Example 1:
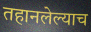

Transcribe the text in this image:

तहानलेल्याच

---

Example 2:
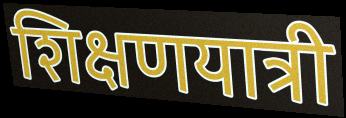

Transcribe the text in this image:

शिक्षणयात्री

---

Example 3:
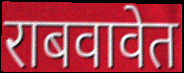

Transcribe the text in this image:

राबवावेत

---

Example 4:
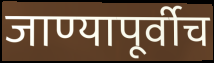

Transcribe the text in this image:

जाण्यापूर्वीच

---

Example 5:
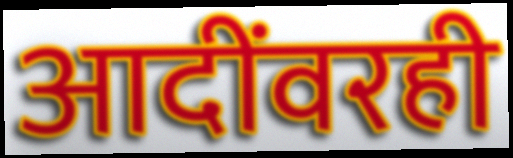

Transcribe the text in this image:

आदींवरही